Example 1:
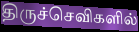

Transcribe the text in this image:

திருச்செவிகளில்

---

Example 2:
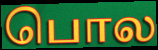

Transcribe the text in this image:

பொல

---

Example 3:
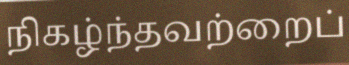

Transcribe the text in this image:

நிகழ்ந்தவற்றைப்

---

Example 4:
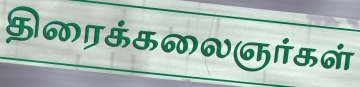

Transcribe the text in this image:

திரைக்கலைஞர்கள்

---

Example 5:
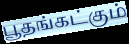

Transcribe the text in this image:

பூதங்கட்கும்